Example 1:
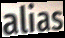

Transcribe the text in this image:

alias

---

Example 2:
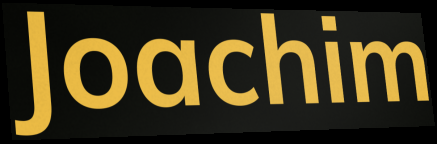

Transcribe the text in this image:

Joachim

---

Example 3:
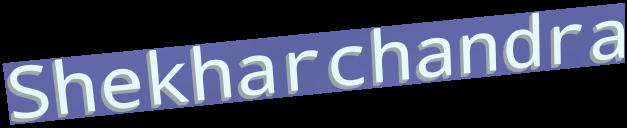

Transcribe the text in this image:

Shekharchandra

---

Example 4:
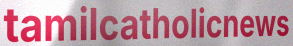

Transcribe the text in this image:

tamilcatholicnews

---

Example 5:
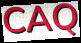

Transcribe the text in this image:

CAQ